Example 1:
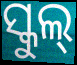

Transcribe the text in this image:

ସ୍କୁଲ୍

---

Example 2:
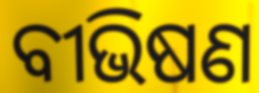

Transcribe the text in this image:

ବୀଭିଷଣ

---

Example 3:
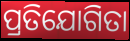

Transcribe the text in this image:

ପ୍ରତିଯୋଗିତା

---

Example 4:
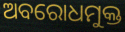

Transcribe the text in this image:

ଅବରୋଧମୁକ୍ତ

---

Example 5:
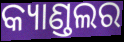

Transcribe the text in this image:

କ୍ୟାଣ୍ଡଲର